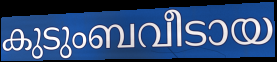
കുടുംബവീടായ